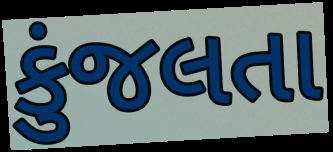
કુંજલતા